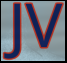
JV